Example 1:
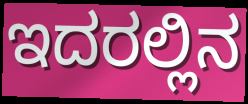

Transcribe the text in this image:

ಇದರಲ್ಲಿನ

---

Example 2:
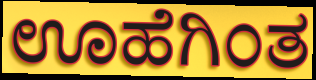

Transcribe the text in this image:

ಊಹೆಗಿಂತ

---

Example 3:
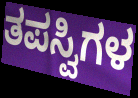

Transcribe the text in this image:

ತಪಸ್ವಿಗಳ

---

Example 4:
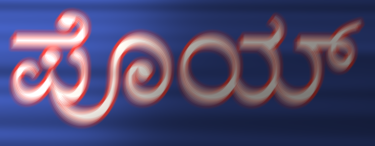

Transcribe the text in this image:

ಪೊಯ್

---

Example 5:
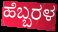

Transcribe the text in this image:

ಹೆಬ್ಬರಳ